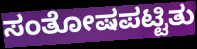
ಸಂತೋಷಪಟ್ಟಿತು